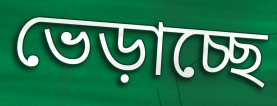
ভেড়াচ্ছে